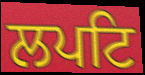
ਲਪਟਿ